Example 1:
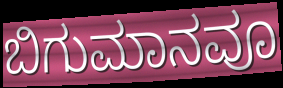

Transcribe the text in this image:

ಬಿಗುಮಾನವೂ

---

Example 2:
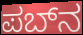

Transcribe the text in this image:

ಪಬ್‌ನ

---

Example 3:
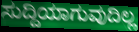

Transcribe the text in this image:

ಸುದ್ದಿಯಾಗುವುದಿಲ್ಲ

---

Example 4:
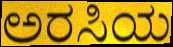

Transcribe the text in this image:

ಅರಸಿಯ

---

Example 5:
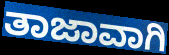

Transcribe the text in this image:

ತಾಜಾವಾಗಿ